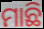
ମାଛି